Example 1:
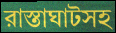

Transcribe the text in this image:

রাস্তাঘাটসহ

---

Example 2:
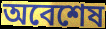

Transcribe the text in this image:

অবেশেষ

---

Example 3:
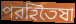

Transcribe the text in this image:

পরহিতৈষা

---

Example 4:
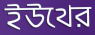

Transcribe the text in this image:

ইউথের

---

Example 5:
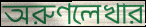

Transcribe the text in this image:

অরুণলেখার